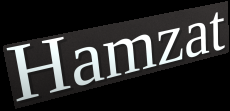
Hamzat